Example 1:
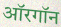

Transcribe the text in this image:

ऑरगॉन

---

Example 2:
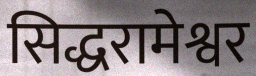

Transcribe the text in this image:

सिद्धरामेश्वर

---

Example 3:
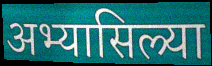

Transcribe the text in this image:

अभ्यासिल्या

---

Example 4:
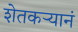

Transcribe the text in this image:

शेतकर्‍यानं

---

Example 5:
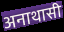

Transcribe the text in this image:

अनाथासी